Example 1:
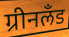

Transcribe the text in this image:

ग्रीनलँड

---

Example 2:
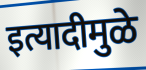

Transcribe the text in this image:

इत्यादीमुळे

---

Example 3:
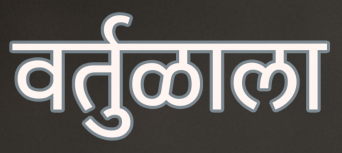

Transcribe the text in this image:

वर्तुळाला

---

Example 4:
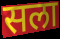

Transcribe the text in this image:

सला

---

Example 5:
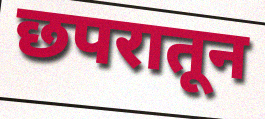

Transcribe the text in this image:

छपरातून